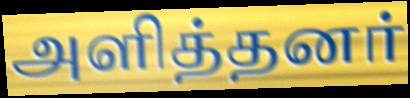
அளித்தனர்